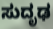
ಸುದೃಢ